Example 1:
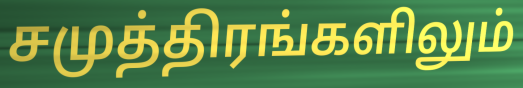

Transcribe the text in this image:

சமுத்திரங்களிலும்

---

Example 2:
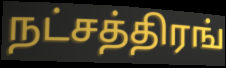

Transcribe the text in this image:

நட்சத்திரங்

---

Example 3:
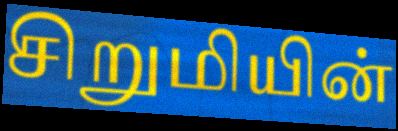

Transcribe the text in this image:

சிறுமியின்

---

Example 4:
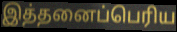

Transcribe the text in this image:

இத்தனைப்பெரிய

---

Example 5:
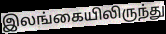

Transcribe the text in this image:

இலங்கையிலிருந்து